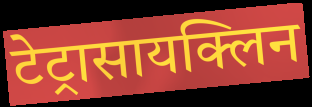
टेट्रासायक्लिन